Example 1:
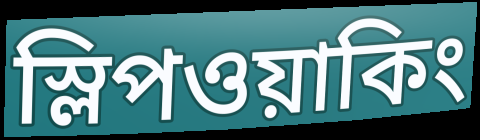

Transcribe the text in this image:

স্লিপওয়াকিং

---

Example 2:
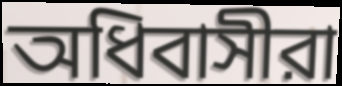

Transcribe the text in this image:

অধিবাসীরা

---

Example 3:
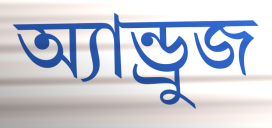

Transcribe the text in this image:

অ্যান্ড্রুজ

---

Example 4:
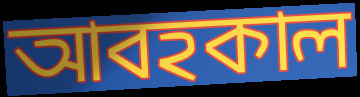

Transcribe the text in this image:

আবহকাল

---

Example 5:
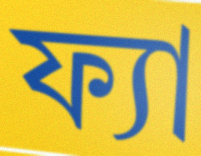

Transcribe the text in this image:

ফ্যা